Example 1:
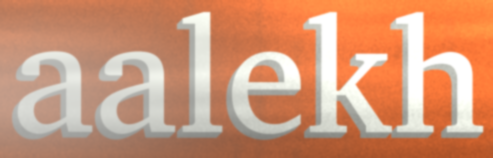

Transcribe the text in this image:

aalekh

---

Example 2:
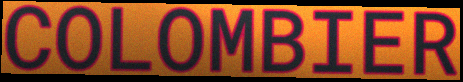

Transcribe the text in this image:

COLOMBIER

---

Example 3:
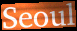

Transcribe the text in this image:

Seoul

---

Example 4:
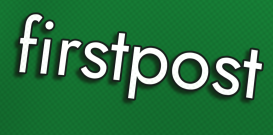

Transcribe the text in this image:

firstpost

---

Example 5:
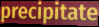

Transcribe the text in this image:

precipitate